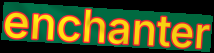
enchanter